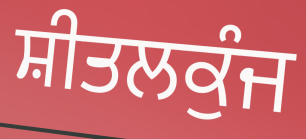
ਸ਼ੀਤਲਕੁੰਜ